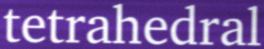
tetrahedral